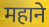
महाने